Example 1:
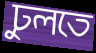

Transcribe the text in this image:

ঢুলতে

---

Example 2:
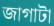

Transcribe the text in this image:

জাগাটা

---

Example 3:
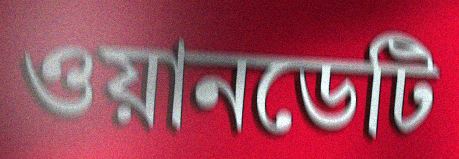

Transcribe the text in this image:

ওয়ানডেটি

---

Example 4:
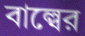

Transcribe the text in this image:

বাল্বের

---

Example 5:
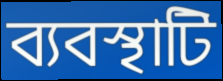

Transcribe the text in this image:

ব্যবস্থাটি